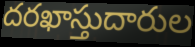
దరఖాస్తుదారుల